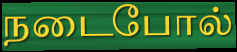
நடைபோல்